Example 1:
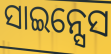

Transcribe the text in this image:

ସାଇନ୍ସେସ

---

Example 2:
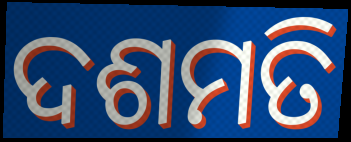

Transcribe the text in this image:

ଦଶମତି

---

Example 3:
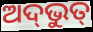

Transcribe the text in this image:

ଅଦ୍‌ଭୁତ୍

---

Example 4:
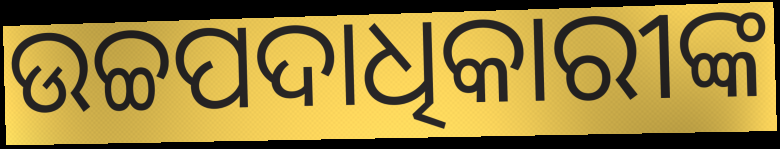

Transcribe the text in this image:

ଉଚ୍ଚପଦାଧିକାରୀଙ୍କ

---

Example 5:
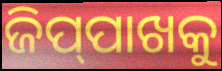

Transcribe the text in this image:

ଜିପ୍‌ପାଖକୁ